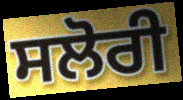
ਸਲੋਰੀ